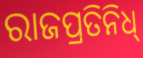
ରାଜପ୍ରତିନିଧ୍